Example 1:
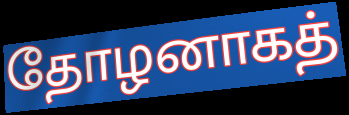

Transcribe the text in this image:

தோழனாகத்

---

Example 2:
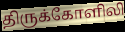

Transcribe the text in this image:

திருக்கோளிலி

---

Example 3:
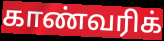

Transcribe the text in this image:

காண்வரிக்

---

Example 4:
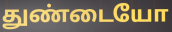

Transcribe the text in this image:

துண்டையோ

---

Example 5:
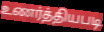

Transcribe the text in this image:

உணர்த்தியபடி